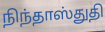
நிந்தாஸ்துதி